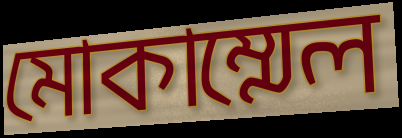
মোকাম্মেল